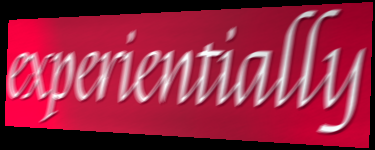
experientially